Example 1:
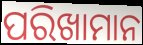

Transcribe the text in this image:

ପରିଖାମାନ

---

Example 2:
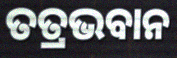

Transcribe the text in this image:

ତତ୍ରଭବାନ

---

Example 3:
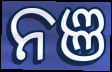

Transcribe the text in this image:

ନଞ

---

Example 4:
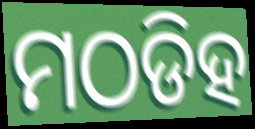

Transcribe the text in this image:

ମଠଡିହ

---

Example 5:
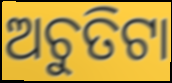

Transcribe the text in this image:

ଅଚୁତିଟା